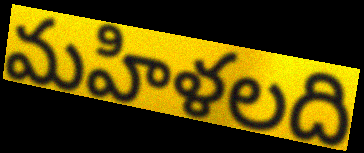
మహిళలది